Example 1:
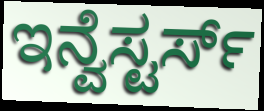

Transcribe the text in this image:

ಇನ್ವೆಸ್ಟರ್ಸ್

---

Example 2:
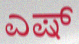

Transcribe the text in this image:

ಎಷ್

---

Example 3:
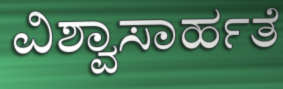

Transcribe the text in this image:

ವಿಶ್ವಾಸಾರ್ಹತೆ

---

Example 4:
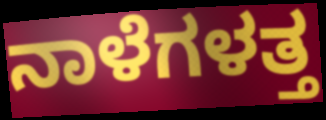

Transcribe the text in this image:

ನಾಳೆಗಳತ್ತ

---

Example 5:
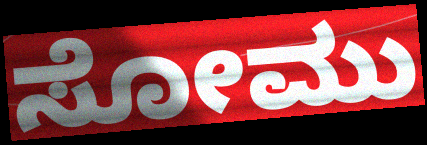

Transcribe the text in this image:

ಸೋಮು